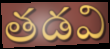
తడవి